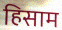
हिसाम